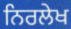
ਨਿਰਲੇਖ